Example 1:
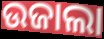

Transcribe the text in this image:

ଉଜାଲା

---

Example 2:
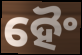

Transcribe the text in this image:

ହୈଂ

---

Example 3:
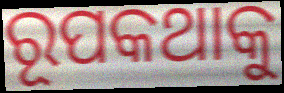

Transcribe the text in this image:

ରୂପକଥାକୁ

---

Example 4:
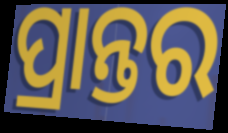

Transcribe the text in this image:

ପ୍ରାନ୍ତର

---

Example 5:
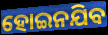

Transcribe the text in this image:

ହୋଇନଯିବ